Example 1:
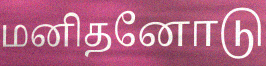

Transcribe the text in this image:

மனிதனோடு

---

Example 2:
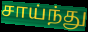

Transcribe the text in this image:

சாய்ந்து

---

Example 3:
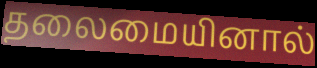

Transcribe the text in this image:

தலைமையினால்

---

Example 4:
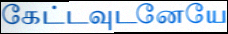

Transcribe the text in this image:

கேட்டவுடனேயே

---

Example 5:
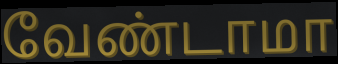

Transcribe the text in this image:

வேண்டாமா